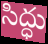
సిద్ధు